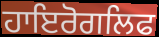
ਹਾਇਰੋਗਲਿਫ